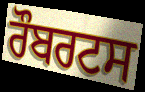
ਰੌਬਰਟਸ